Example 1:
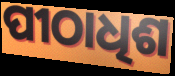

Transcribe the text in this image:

ପୀଠାଧିଶ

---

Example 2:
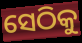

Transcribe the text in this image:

ସେଠିକୁ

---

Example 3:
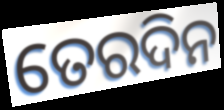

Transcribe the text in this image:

ତେରଦିନ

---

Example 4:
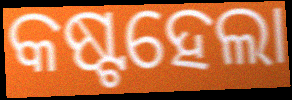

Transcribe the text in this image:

କଷ୍ଟହେଲା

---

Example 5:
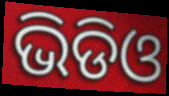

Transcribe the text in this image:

ଭିଡିଓ